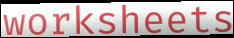
worksheets